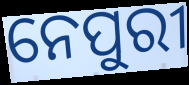
ନେପୁରୀ